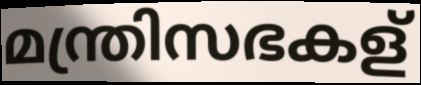
മന്ത്രിസഭകള്